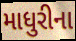
માધુરીના